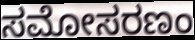
ಸಮೋಸರಣಂ